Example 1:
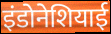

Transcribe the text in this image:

इंडोनेशियाई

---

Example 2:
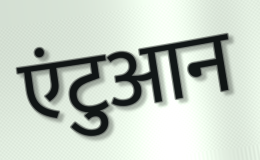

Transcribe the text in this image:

एंटुआन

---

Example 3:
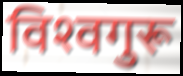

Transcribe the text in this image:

विश्वगुरू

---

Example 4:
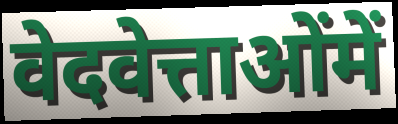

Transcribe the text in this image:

वेदवेत्ताओंमें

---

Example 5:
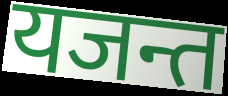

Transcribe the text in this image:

यजन्त